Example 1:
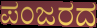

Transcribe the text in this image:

ಪಂಜರದ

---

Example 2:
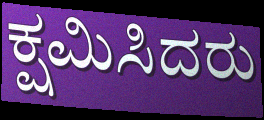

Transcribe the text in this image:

ಕ್ಷಮಿಸಿದರು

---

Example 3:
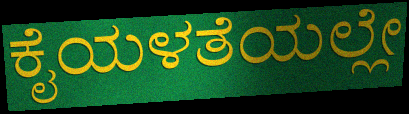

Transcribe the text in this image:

ಕೈಯಳತೆಯಲ್ಲೇ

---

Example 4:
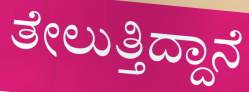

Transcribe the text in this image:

ತೇಲುತ್ತಿದ್ದಾನೆ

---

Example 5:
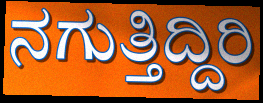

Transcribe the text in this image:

ನಗುತ್ತಿದ್ದಿರಿ